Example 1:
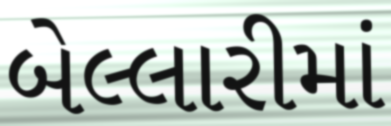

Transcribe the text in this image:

બેલ્લારીમાં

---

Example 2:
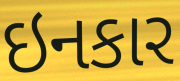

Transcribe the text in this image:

ઇનકાર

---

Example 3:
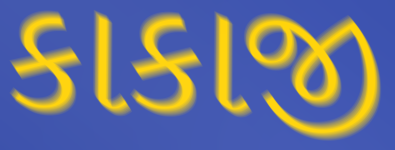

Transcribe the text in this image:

કાકાજી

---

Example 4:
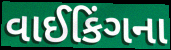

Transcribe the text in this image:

વાઈકિંગના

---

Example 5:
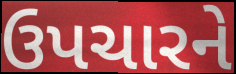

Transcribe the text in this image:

ઉપચારને